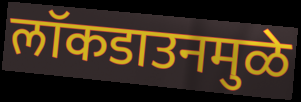
लॉकडाउनमुळे